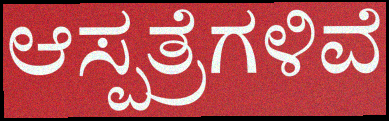
ಆಸ್ಪತ್ರೆಗಳಿವೆ